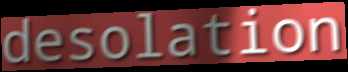
desolation